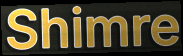
Shimre